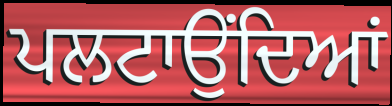
ਪਲਟਾਉਂਦਿਆਂ